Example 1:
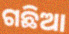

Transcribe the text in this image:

ଗଛିଆ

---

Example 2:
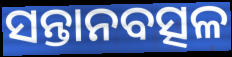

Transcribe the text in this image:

ସନ୍ତାନବତ୍ସଳ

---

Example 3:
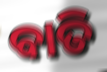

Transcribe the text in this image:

ବାତି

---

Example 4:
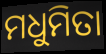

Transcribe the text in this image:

ମଧୁମିତା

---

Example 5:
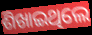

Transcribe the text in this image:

ଶିଖାଇଥିଲେ